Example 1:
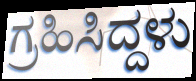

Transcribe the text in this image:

ಗ್ರಹಿಸಿದ್ದಳು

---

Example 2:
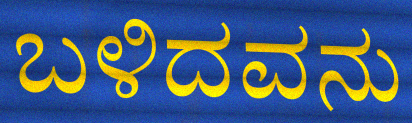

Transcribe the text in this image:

ಬಳಿದವನು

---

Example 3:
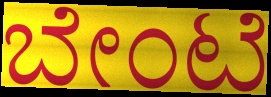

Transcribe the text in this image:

ಬೇಂಟೆ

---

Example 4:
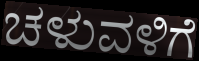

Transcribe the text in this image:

ಚಳುವಳಿಗೆ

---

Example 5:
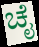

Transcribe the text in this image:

ಚೈ